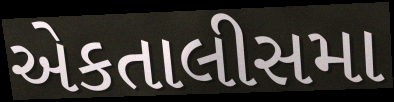
એકતાલીસમા